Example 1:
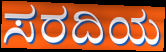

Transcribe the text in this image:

ಸರದಿಯ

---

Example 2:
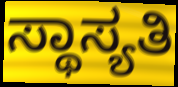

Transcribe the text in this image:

ಸ್ಥಾಸ್ಯತಿ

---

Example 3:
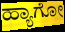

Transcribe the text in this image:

ಹ್ಯಾಗೋ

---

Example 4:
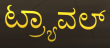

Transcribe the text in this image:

ಟ್ರ್ಯಾವಲ್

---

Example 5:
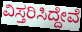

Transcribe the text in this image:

ವಿಸ್ತರಿಸಿದ್ದೇವೆ